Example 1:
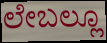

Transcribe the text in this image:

ಲೇಬಲ್ಲೂ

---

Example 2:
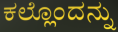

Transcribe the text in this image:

ಕಲ್ಲೊಂದನ್ನು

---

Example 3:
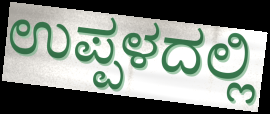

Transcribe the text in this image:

ಉಪ್ಪಳದಲ್ಲಿ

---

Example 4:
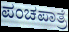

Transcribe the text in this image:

ಪಂಚಪಾತ್ರೆ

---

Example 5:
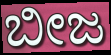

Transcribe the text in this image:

ಬೀಜ